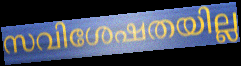
സവിശേഷതയില്ല